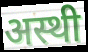
अस्थी